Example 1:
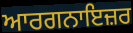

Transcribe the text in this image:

ਆਰਗਨਾਇਜ਼ਰ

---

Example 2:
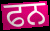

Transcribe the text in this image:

ਫਨ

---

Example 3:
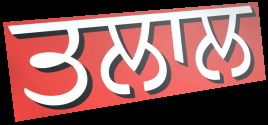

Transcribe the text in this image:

ਤਲਾਲ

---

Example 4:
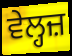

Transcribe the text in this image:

ਵੇਲ੍ਹਜ਼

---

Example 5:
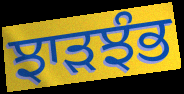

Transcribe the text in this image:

ਝਾੜਝੰਭ